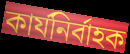
কাৰ্যনিৰ্বাহক